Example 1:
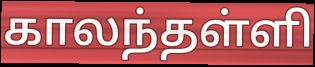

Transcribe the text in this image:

காலந்தள்ளி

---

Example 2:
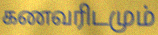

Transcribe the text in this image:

கணவரிடமும்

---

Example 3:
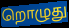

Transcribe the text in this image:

றொழுது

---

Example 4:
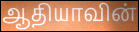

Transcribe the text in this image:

ஆதியாவின்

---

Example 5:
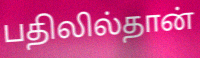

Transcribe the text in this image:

பதிலில்தான்